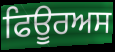
ਫਿਊਰਅਸ